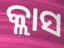
କ୍ଲାସ